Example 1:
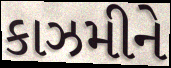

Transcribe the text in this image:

કાઝમીને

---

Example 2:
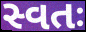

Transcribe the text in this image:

સ્વતઃ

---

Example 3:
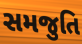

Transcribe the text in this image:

સમજુતિ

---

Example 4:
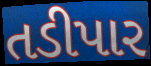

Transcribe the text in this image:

તડીપાર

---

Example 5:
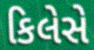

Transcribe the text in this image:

કિલેસે